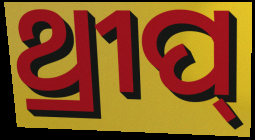
ଥ୍ରୀପ୍